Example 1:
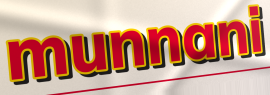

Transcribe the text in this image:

munnani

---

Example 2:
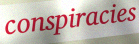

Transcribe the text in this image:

conspiracies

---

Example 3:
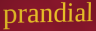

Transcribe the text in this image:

prandial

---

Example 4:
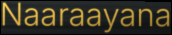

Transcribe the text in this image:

Naaraayana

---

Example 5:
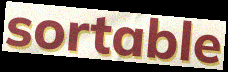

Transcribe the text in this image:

sortable